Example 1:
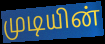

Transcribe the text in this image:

முடியின்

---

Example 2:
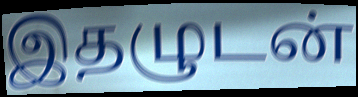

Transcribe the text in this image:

இதழுடன்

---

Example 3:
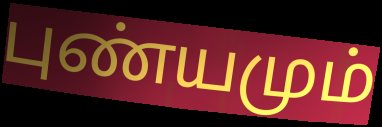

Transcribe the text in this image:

புண்யமும்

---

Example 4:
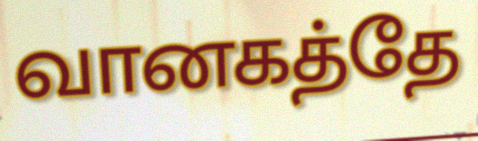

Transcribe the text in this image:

வானகத்தே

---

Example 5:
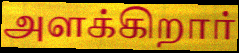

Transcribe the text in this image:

அளக்கிறார்